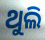
ଥୁଲି